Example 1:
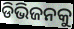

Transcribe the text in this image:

ଡିଭିଜନକୁ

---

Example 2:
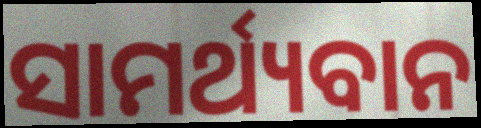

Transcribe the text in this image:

ସାମର୍ଥ୍ୟବାନ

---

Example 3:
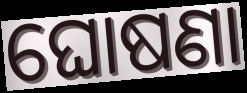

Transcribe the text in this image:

ଘୋଷଣା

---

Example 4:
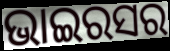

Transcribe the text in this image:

ଭାଇରସର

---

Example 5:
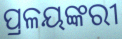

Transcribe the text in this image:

ପ୍ରଳୟଙ୍କରୀ